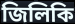
জিলিকি